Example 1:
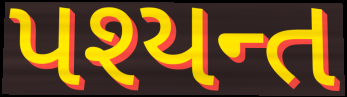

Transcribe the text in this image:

પશ્યન્ત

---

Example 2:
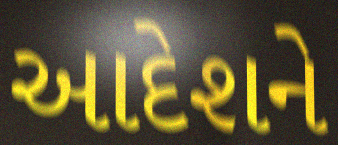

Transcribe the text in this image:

આદેશને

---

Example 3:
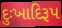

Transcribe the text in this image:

દુઃખાદિરૂપ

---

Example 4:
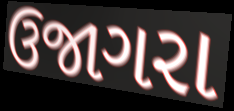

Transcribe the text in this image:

ઉજાગરા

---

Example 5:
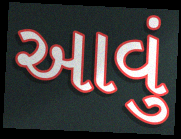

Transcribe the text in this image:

આવું